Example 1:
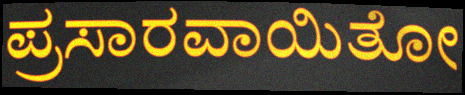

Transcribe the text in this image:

ಪ್ರಸಾರವಾಯಿತೋ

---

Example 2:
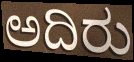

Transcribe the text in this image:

ಅದಿರು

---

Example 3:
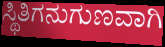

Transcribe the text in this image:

ಸ್ಥಿತಿಗನುಗುಣವಾಗಿ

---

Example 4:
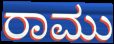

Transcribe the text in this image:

ರಾಮು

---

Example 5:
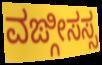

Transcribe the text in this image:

ವಙ್ಗೀಸಸ್ಸ